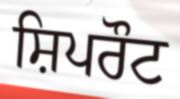
ਸ਼ਿਪਰੌਟ